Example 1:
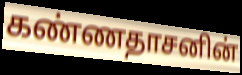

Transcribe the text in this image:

கண்ணதாசனின்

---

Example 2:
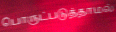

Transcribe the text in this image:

பொருட்படுத்தாமல்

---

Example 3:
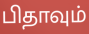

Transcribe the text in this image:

பிதாவும்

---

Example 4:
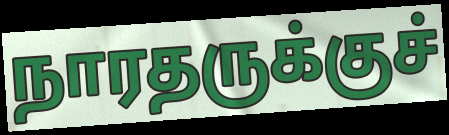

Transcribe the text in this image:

நாரதருக்குச்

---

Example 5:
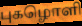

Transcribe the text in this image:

புகழொளி